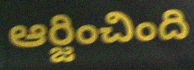
ఆర్జించింది